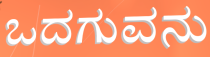
ಒದಗುವನು